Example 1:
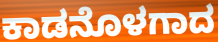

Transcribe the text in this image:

ಕಾಡನೊಳಗಾದ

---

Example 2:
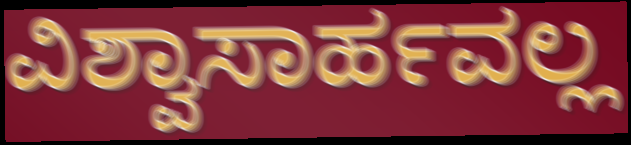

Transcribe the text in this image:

ವಿಶ್ವಾಸಾರ್ಹವಲ್ಲ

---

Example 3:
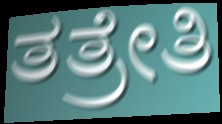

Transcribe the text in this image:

ತತ್ರೇತಿ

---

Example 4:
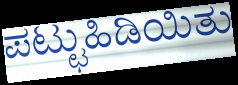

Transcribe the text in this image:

ಪಟ್ಟುಹಿಡಿಯಿತು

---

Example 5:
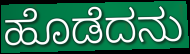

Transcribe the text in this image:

ಹೊಡೆದನು